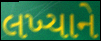
લખ્યાને